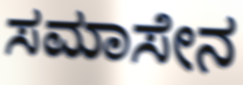
ಸಮಾಸೇನ